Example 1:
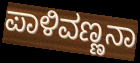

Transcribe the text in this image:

ಪಾಳಿವಣ್ಣನಾ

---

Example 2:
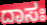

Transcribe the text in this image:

ದಾಸಃ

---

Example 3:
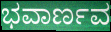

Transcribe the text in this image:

ಭವಾರ್ಣವ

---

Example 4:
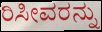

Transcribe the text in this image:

ರಿಸೀವರನ್ನು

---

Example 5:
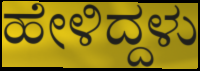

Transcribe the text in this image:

ಹೇಳಿದ್ದಳು